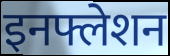
इनफ्लेशन